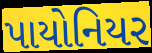
પાયોનિયર